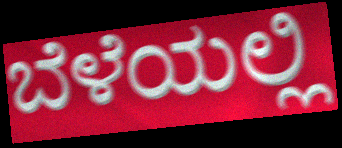
ಬೆಳೆಯಲ್ಲಿ